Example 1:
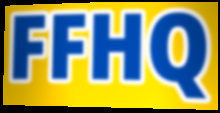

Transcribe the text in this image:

FFHQ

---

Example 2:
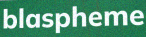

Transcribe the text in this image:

blaspheme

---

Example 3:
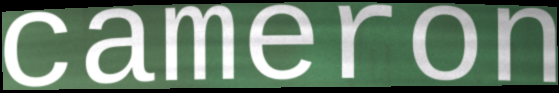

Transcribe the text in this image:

cameron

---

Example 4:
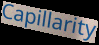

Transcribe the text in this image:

Capillarity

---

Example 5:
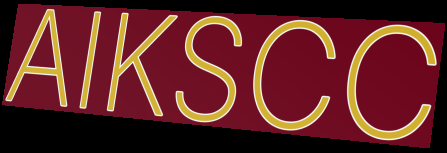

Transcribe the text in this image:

AIKSCC